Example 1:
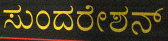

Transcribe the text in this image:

ಸುಂದರೇಶನ್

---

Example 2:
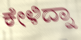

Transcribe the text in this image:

ಕೇಳಿದ್ನಾ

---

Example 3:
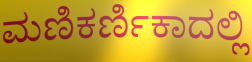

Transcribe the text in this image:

ಮಣಿಕರ್ಣಿಕಾದಲ್ಲಿ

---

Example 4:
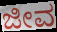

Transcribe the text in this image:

ಜೀವ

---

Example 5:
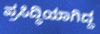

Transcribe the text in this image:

ಪ್ರಸಿದ್ಧಿಯಾಗಿದ್ದ